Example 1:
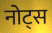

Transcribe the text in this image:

नोट्स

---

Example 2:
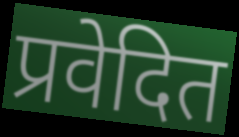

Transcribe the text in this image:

प्रवेदित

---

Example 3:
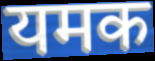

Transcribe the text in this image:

यमक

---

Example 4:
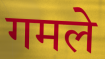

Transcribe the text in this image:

गमले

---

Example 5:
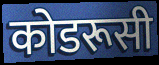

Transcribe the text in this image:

कोडरूसी